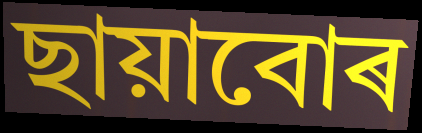
ছায়াবোৰ